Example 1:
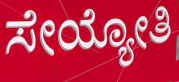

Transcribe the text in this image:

ಸೇಯ್ಯೋತಿ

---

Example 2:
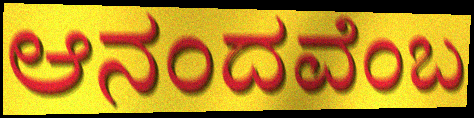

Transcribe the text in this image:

ಆನಂದವೆಂಬ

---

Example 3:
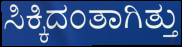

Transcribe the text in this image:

ಸಿಕ್ಕಿದಂತಾಗಿತ್ತು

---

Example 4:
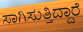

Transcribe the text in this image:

ಸಾಗಿಸುತ್ತಿದ್ದಾರೆ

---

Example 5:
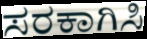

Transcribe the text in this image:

ಸರಕಾಗಿಸಿ